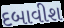
દબાવીશ